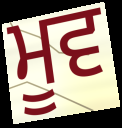
ਮੂਵ